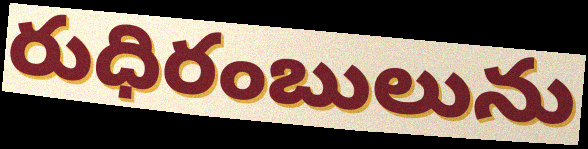
రుధిరంబులును